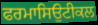
ਫਰਮਾਸਿਉਟੀਕਲ